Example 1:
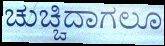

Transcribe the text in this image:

ಚುಚ್ಚಿದಾಗಲೂ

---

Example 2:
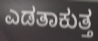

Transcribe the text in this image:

ಎಡತಾಕುತ್ತ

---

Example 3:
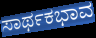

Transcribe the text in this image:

ಸಾರ್ಥಕಭಾವ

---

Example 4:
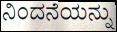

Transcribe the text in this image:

ನಿಂದನೆಯನ್ನು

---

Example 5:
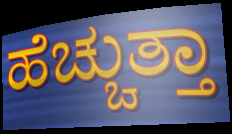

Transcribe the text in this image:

ಹೆಚ್ಚುತ್ತಾ